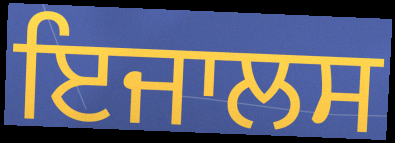
ਇਜਾਲਸ